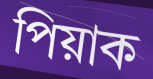
পিয়াক